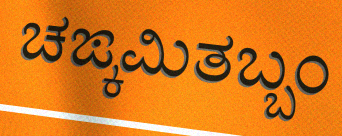
ಚಙ್ಕಮಿತಬ್ಬಂ